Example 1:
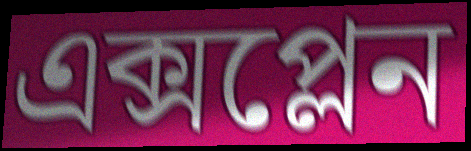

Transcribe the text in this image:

এক্সপ্লেন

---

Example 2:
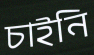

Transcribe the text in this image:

চাইনি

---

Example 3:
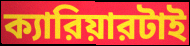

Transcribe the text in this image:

ক্যারিয়ারটাই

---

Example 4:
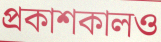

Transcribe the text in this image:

প্রকাশকালও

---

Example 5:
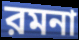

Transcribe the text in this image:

রমনা